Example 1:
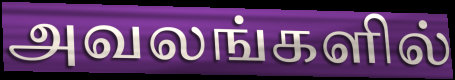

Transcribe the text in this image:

அவலங்களில்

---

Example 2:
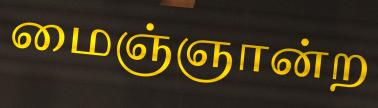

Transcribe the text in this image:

மைஞ்ஞான்ற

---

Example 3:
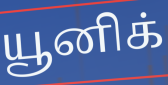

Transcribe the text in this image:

யூனிக்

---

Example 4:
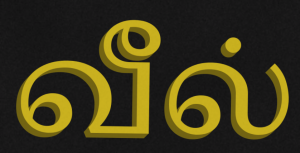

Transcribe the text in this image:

வீல்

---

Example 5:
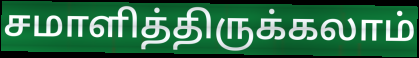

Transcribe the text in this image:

சமாளித்திருக்கலாம்